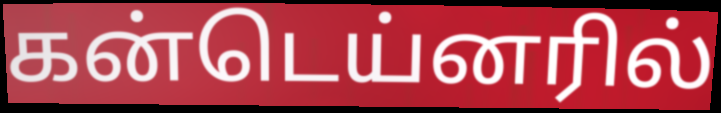
கன்டெய்னரில்